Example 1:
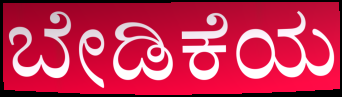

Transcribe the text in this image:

ಬೇಡಿಕೆಯ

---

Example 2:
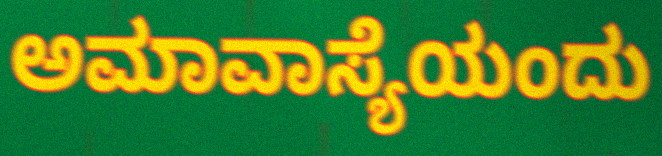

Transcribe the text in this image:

ಅಮಾವಾಸ್ಯೆಯಂದು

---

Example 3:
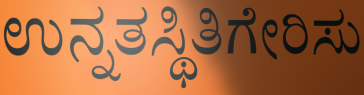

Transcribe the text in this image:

ಉನ್ನತಸ್ಥಿತಿಗೇರಿಸು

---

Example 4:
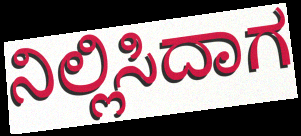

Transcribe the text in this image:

ನಿಲ್ಲಿಸಿದಾಗ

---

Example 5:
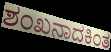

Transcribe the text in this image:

ಶಂಖನಾದಕಿಂತ